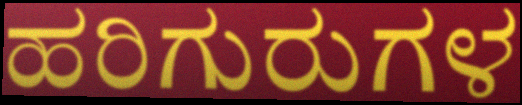
ಹರಿಗುರುಗಳ